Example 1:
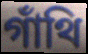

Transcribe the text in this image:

গাঁথি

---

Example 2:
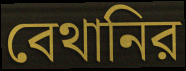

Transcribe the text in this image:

বেথানির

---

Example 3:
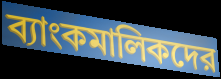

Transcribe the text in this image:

ব্যাংকমালিকদের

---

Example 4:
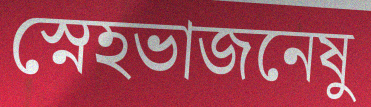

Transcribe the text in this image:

স্নেহভাজনেষু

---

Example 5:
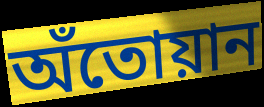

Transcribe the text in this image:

অঁতোয়ান